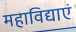
महाविद्याएं